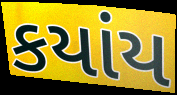
કયાંય